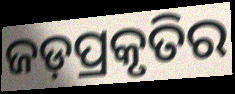
ଜଡ଼ପ୍ରକୃତିର